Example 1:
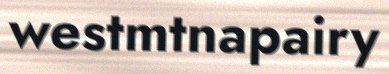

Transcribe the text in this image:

westmtnapairy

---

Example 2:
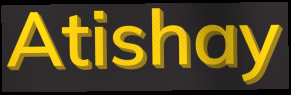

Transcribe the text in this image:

Atishay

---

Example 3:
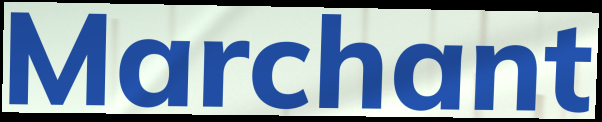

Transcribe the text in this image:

Marchant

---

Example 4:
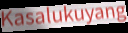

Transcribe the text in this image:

Kasalukuyang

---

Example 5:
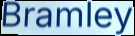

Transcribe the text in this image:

Bramley